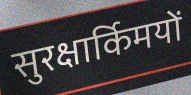
सुरक्षार्किमयों